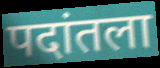
पदांतला